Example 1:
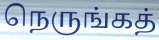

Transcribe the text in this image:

நெருங்கத்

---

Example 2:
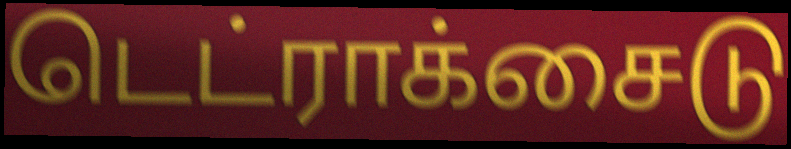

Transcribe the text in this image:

டெட்ராக்சைடு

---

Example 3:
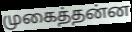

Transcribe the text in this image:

முகைத்தன்ன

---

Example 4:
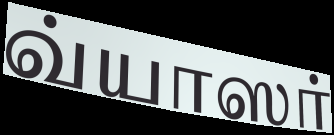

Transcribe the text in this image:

வ்யாஸர்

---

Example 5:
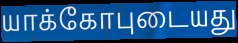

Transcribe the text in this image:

யாக்கோபுடையது